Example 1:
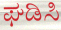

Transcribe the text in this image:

ಘಡಿಸಿ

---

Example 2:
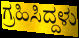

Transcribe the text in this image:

ಗ್ರಹಿಸಿದ್ದಳು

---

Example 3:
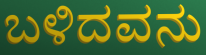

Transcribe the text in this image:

ಬಳಿದವನು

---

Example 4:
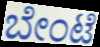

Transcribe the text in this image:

ಬೇಂಟೆ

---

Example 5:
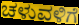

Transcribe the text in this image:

ಚಳುವಳಿಗೆ